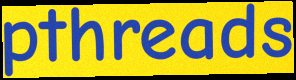
pthreads